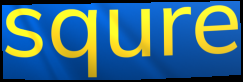
squre